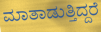
ಮಾತಾಡುತ್ತಿದ್ದರೆ